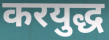
करयुद्ध